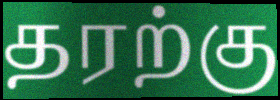
தரற்கு